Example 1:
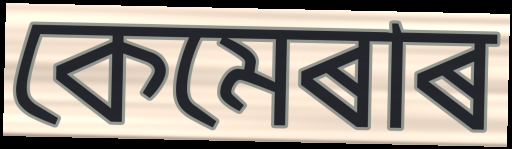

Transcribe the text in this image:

কেমেৰাৰ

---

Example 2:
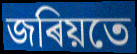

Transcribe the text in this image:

জৰিয়তে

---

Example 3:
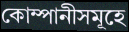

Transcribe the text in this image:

কোম্পানীসমূহে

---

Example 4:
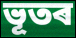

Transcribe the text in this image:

ভূতৰ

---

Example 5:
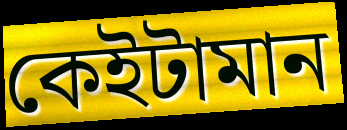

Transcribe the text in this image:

কেইটামান